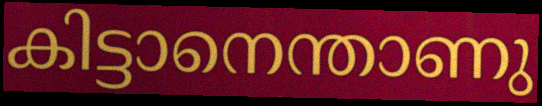
കിട്ടാനെന്താണു